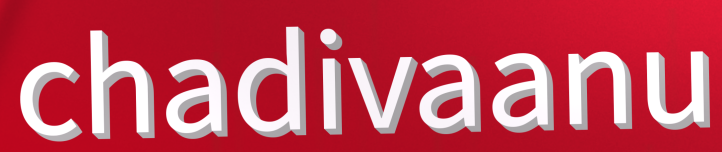
chadivaanu